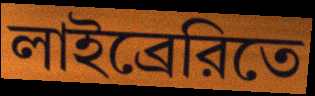
লাইব্রেরিতে